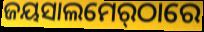
ଜୟସାଲମେର୍‌ଠାରେ